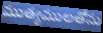
ముత్యములతోను